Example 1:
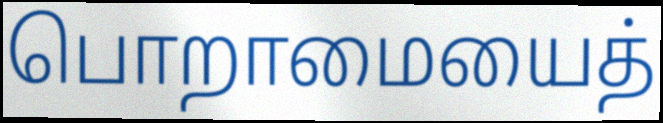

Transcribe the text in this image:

பொறாமையைத்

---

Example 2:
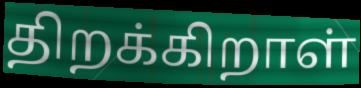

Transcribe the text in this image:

திறக்கிறாள்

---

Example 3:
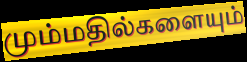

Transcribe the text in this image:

மும்மதில்களையும்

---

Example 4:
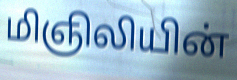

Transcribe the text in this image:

மிஞிலியின்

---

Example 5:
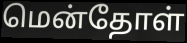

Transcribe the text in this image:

மென்தோள்